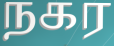
நகர